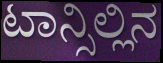
ಟಾನ್ಸಿಲ್ಲಿನ